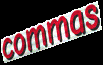
commas